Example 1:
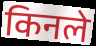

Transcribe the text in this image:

किनले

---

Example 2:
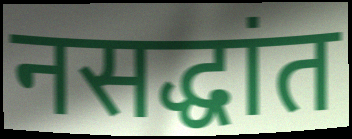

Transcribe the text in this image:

नसद्धांत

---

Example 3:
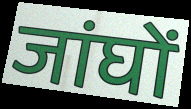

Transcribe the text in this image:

जांघों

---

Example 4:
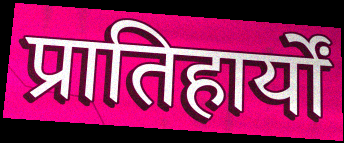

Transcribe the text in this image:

प्रातिहार्यों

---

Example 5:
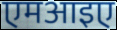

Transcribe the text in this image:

एमआइए